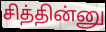
சித்தின்னு